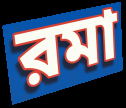
রমা